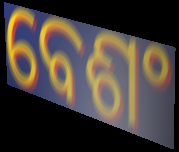
ବେଶଂ